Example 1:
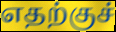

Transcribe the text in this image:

எதற்குச்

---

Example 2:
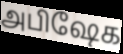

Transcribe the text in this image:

அபிஷேக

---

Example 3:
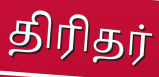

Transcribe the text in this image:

திரிதர்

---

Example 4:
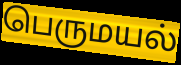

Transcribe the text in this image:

பெருமயல்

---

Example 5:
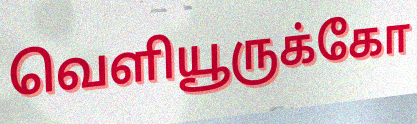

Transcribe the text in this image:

வெளியூருக்கோ